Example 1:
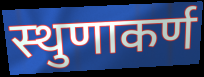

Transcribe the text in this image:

स्थुणाकर्ण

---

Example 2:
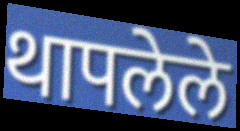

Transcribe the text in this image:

थापलेले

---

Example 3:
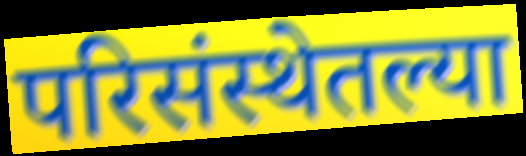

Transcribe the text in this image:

परिसंस्थेतल्या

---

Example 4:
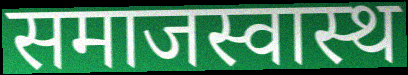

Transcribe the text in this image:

समाजस्वास्थ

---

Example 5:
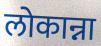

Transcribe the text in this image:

लोकान्ना